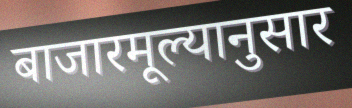
बाजारमूल्यानुसार